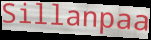
Sillanpaa